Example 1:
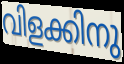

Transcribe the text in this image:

വിളക്കിനു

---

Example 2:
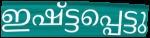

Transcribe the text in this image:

ഇഷ്ട്ടപ്പെട്ടു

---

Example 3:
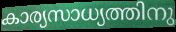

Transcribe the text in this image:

കാര്യസാധ്യത്തിനു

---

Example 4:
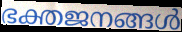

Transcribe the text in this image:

ഭക്തജനങ്ങൾ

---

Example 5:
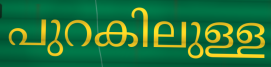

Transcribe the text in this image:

പുറകിലുള്ള